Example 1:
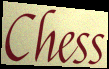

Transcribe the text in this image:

Chess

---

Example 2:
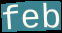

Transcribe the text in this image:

feb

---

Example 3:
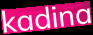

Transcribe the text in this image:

kadina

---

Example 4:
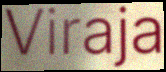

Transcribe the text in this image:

Viraja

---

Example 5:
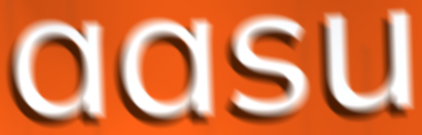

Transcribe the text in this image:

aasu